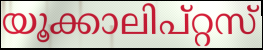
യൂക്കാലിപ്റ്റസ്